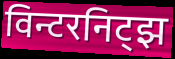
विन्टरनिट्झ